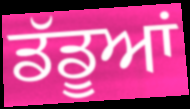
ਡੱਡੂਆਂ